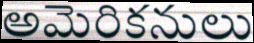
అమెరికనులు